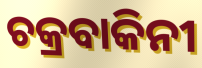
ଚକ୍ରବାକିନୀ